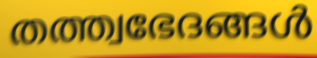
തത്ത്വഭേദങ്ങൾ